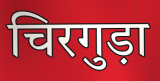
चिरगुड़ा